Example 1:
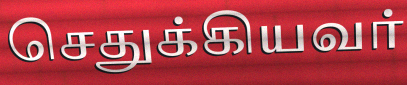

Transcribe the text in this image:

செதுக்கியவர்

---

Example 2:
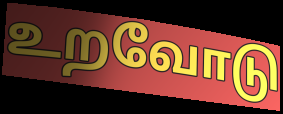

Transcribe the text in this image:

உறவோடு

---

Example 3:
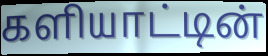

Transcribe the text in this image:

களியாட்டின்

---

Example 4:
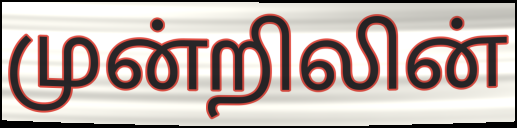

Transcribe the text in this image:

முன்றிலின்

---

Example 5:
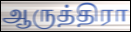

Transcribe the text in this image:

ஆருத்திரா